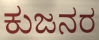
ಕುಜನರ